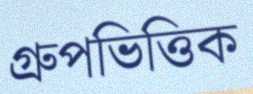
গ্রুপভিত্তিক